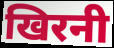
खिरनी